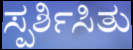
ಸ್ಪರ್ಶಿಸಿತು